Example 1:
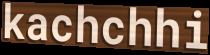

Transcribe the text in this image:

kachchhi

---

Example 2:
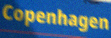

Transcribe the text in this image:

Copenhagen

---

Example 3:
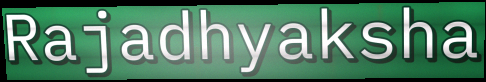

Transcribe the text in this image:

Rajadhyaksha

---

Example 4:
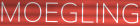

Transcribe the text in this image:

MOEGLING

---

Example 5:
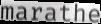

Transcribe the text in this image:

marathe